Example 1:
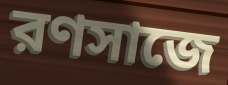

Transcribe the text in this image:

রণসাজে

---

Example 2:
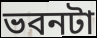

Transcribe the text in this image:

ভবনটা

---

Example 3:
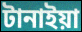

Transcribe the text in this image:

টানাইয়া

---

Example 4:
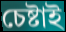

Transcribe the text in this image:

চেষ্টাই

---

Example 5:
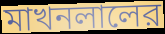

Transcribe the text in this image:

মাখনলালের